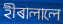
হীৰালালে